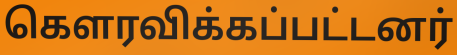
கௌரவிக்கப்பட்டனர்